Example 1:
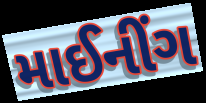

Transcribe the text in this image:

માઈનીંગ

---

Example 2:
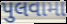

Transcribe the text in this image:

પુલવામા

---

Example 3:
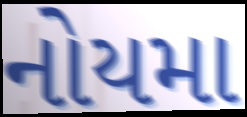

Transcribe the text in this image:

નોયમા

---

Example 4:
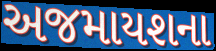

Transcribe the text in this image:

અજમાયશના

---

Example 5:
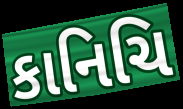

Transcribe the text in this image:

કાનિચિ